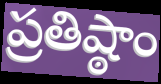
ప్రతిష్ఠాం